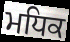
ਮਧਿਕ